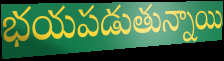
భయపడుతున్నాయి